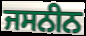
ਜਸਨੀਨ